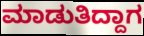
ಮಾಡುತಿದ್ದಾಗ